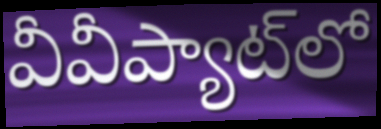
వీవీప్యాట్‌లో